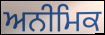
ਅਨੀਮਿਕ